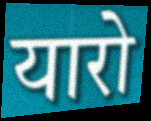
यारो